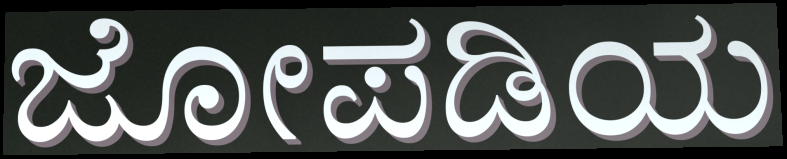
ಜೋಪಡಿಯ